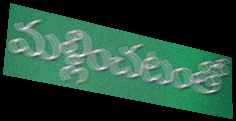
మళ్లించటంతో